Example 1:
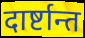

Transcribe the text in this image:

दार्ष्टान्त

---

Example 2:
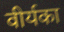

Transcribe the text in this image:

वीर्यका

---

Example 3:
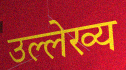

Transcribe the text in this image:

उल्लेख्य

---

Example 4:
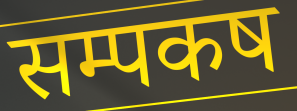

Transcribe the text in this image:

सम्पकष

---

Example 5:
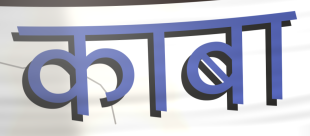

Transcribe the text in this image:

काबा